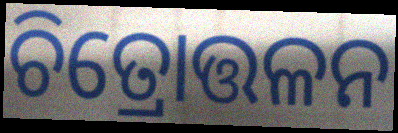
ଚିତ୍ରୋତ୍ତଳନ